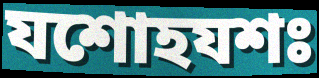
যশোহযশঃ